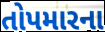
તોપમારના